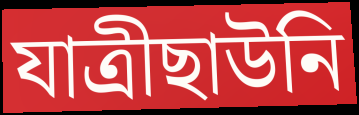
যাত্রীছাউনি